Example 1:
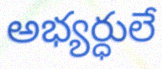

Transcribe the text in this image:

అభ్యర్ధులే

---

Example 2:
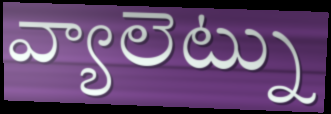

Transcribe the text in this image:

వ్యాలెట్ను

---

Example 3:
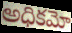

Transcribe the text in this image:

అధికమో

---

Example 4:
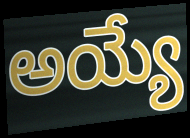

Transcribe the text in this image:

అయ్యే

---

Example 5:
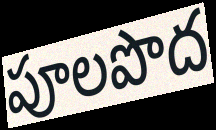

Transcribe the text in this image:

పూలపొద